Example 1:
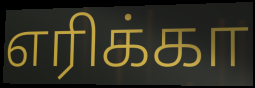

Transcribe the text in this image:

எரிக்கா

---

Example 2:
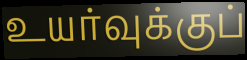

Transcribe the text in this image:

உயர்வுக்குப்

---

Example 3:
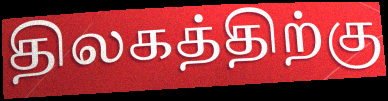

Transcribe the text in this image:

திலகத்திற்கு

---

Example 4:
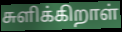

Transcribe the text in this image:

சுளிக்கிறாள்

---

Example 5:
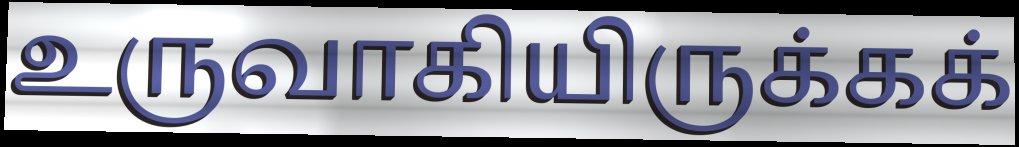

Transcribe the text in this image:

உருவாகியிருக்கக்